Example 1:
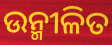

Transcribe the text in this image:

ଉନ୍ମୀଳିତ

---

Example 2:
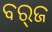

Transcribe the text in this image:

ବର୍‌ଜ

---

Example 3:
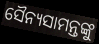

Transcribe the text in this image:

ସୈନ୍ୟସାମନ୍ତଙ୍କୁ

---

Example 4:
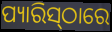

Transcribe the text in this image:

ପ୍ୟାରିସ୍‍ଠାରେ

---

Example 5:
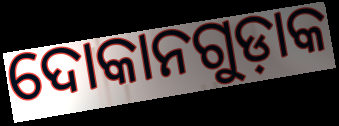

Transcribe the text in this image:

ଦୋକାନଗୁଡ଼ାକ